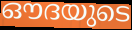
ഔദയുടെ